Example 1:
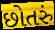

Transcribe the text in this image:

છોતરું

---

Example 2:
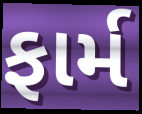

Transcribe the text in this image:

ફાર્મ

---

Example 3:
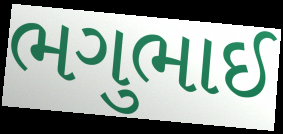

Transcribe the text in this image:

ભગુભાઈ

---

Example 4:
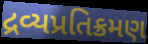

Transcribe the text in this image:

દ્રવ્યપ્રતિક્રમણ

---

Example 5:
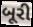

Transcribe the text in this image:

બૂરી